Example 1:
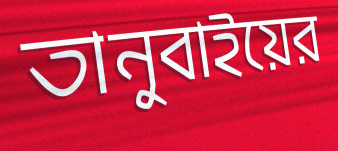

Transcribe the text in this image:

তানুবাইয়ের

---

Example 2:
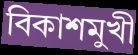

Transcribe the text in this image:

বিকাশমুখী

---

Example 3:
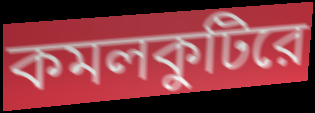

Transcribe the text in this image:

কমলকুটিরে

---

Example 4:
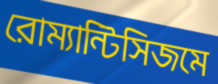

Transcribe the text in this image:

রোম্যান্টিসিজমে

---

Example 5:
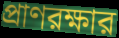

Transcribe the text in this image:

প্রাণরক্ষার